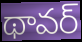
థావర్